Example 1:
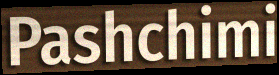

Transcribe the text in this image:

Pashchimi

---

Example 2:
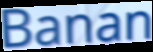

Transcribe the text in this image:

Banan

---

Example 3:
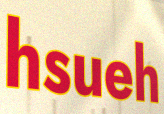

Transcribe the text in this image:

hsueh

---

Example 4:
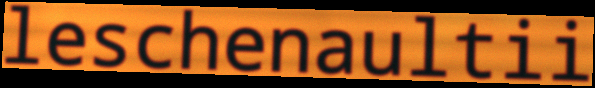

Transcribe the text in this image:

leschenaultii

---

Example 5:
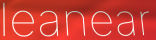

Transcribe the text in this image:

leanear